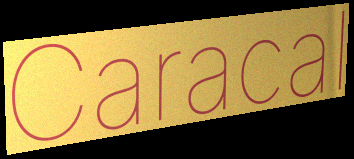
Caracal